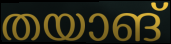
തയാങ്